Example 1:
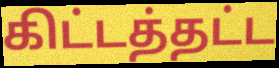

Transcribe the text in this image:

கிட்டத்தட்ட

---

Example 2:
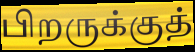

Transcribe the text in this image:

பிறருக்குத்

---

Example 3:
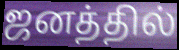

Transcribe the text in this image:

ஜனத்தில்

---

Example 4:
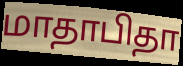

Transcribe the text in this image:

மாதாபிதா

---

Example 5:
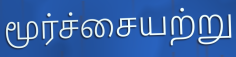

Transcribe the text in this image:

மூர்ச்சையற்று